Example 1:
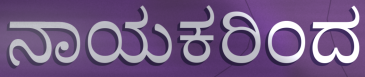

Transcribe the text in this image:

ನಾಯಕರಿಂದ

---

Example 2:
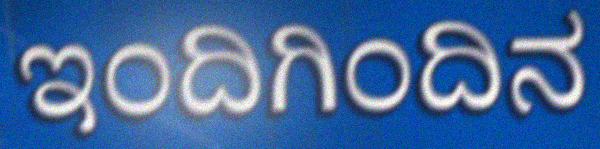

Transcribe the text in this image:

ಇಂದಿಗಿಂದಿನ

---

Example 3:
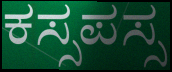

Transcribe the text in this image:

ಕಸ್ಸಪಸ್ಸ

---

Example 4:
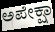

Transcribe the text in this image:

ಅಪೇಕ್ಷಾ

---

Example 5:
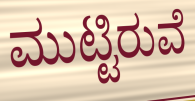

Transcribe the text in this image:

ಮುಟ್ಟಿರುವೆ